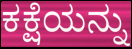
ಕಕ್ಷೆಯನ್ನು